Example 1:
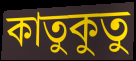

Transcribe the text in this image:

কাতুকুতু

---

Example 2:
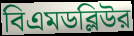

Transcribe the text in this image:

বিএমডব্লিউর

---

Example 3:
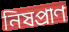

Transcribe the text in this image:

নিষপ্রাণ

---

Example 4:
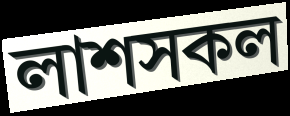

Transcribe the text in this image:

লাশসকল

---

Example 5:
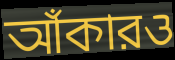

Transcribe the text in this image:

আঁকারও